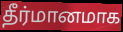
தீர்மானமாக